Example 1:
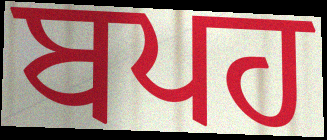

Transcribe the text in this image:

ਬਪਹ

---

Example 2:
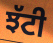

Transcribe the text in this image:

ਝੱਟੀ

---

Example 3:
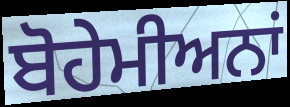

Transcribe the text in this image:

ਬੋਹੇਮੀਅਨਾਂ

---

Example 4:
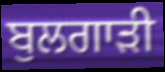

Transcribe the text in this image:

ਬੁਲਗਾੜੀ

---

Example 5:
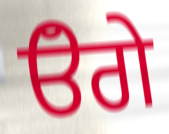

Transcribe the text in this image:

ੳੱਗੇ